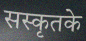
सस्कृतके